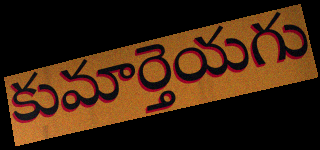
కుమార్తెయగు